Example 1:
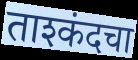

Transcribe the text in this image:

ताश्कंदचा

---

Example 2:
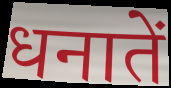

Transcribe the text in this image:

धनातें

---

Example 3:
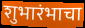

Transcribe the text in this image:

शुभारंभाचा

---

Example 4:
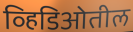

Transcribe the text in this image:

व्हिडिओतील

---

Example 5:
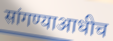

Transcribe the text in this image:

सांगण्याआधीच